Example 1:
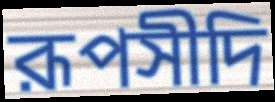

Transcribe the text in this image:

রূপসীদি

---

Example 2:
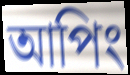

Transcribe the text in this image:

আপিং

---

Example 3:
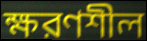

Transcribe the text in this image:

ক্ষরণশীল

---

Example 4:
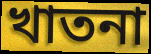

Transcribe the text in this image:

খাতনা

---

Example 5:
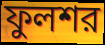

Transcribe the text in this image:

ফুলশর